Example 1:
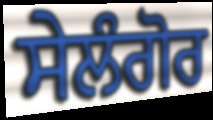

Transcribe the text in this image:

ਸੇਲੰਗੋਰ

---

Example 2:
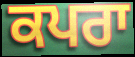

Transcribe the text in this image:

ਕਪਰਾ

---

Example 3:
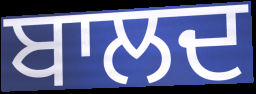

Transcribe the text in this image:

ਬਾਲਦ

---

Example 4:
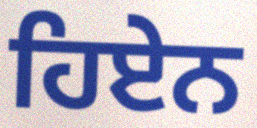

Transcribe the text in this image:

ਹਿਏਨ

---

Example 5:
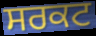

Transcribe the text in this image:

ਸਰਕਟ